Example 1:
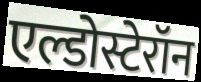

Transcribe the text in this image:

एल्डोस्टेरॉन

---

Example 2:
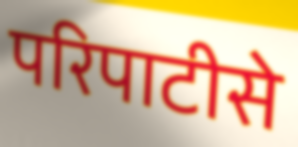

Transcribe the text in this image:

परिपाटीसे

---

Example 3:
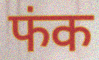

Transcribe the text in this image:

फंक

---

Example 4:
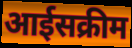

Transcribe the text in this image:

आईसक्रीम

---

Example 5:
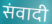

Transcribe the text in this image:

संवादी